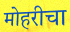
मोहरीचा